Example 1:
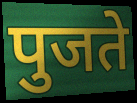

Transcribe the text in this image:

पुजते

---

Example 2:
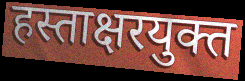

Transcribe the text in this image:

हस्ताक्षरयुक्त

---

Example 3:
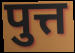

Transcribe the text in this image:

पुत्त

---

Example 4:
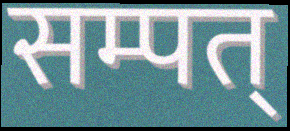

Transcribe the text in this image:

सम्पत्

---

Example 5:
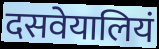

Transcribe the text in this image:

दसवेयालियं